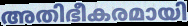
അതിഭീകരമായി